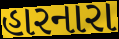
હારનારા